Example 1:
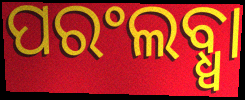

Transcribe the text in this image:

ପରଂଲବ୍ଧ୍ଵା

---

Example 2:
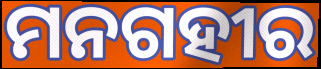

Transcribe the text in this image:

ମନଗହୀର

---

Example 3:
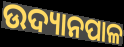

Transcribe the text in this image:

ଉଦ୍ୟାନପାଳ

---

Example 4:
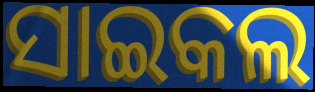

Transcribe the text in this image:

ସାଇକଲ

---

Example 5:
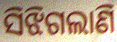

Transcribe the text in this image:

ସିଝିଗଲାଣି